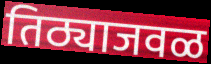
तिठ्याजवळ